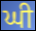
ਘੀ